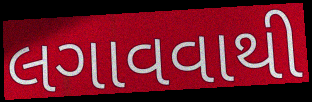
લગાવવાથી